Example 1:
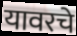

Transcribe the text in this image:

यावरचे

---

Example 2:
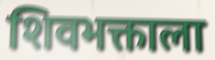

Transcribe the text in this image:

शिवभक्ताला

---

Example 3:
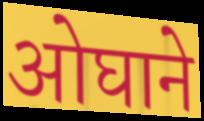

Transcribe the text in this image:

ओघाने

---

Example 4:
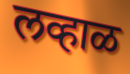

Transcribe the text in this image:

लव्हाळ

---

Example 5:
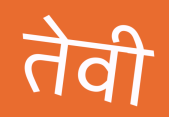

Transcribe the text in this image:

तेवी